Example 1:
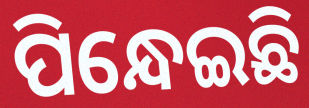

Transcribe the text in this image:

ପିନ୍ଧେଇଛି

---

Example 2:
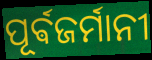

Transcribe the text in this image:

ପୂର୍ଵଜର୍ମାନୀ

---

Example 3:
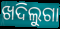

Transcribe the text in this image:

ଖଦିଲୁଗା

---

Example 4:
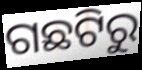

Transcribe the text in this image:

ଗଛଟିରୁ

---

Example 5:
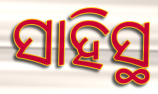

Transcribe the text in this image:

ସାହିସ୍ଥ